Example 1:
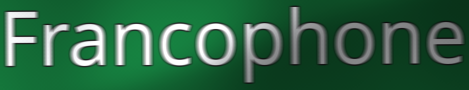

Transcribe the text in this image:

Francophone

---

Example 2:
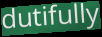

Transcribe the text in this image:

dutifully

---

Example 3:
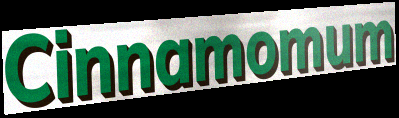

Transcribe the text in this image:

Cinnamomum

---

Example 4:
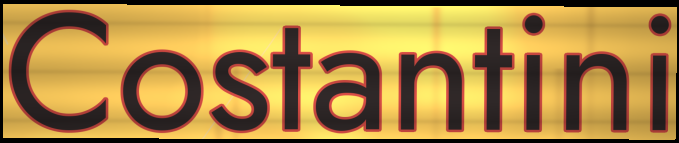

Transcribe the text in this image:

Costantini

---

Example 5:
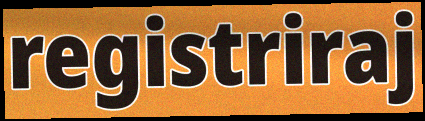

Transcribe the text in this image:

registriraj